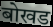
बोखड